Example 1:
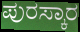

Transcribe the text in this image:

ಪುರಸ್ಕಾರ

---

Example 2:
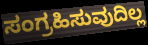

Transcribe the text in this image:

ಸಂಗ್ರಹಿಸುವುದಿಲ್ಲ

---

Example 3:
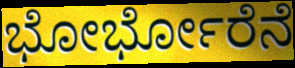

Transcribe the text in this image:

ಭೋರ್ಭೋರೆನೆ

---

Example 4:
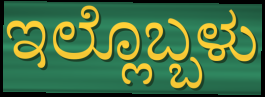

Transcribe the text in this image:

ಇಲ್ಲೊಬ್ಬಳು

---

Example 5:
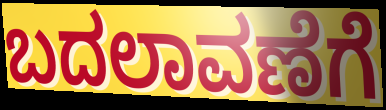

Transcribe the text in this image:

ಬದಲಾವಣೆಗೆ